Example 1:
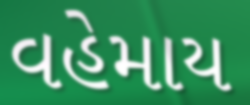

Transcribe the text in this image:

વહેમાય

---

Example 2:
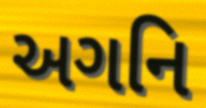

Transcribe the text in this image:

અગનિ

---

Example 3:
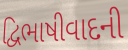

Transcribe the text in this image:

દ્વિભાષીવાદની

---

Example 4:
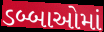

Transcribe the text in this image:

ડબ્બાઓમાં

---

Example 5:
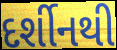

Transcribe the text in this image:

દર્શીનથી